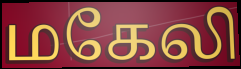
மகேலி